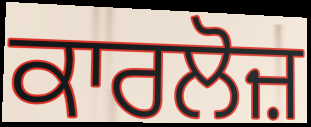
ਕਾਰਲੋਜ਼